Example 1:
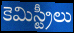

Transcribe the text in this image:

కెమిస్ట్రీలు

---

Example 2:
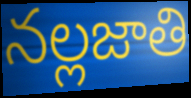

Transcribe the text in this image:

నల్లజాతి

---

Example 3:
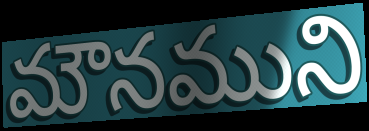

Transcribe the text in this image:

మౌనముని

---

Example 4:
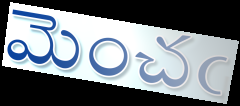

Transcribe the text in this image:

మెంచఁ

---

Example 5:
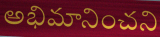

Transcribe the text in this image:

అభిమానించని